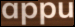
appu